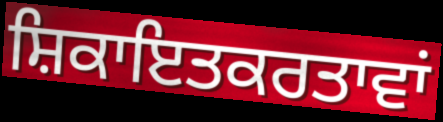
ਸ਼ਿਕਾਇਤਕਰਤਾਵਾਂ